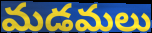
మడమలు